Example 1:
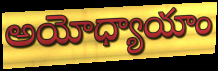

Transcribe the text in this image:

అయోధ్యాయాం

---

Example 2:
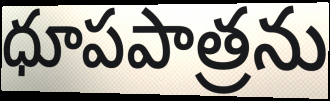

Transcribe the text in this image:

ధూపపాత్రను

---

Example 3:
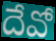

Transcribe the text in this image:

దేవో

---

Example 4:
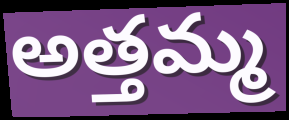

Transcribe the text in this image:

అత్తమ్మ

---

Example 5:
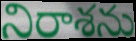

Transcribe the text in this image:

నిరాశను